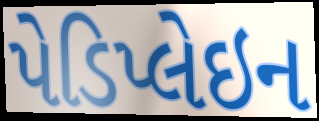
પેડિપ્લેઇન